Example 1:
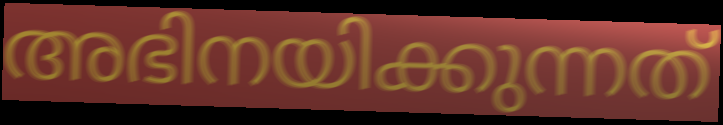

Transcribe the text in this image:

അഭിനയിക്കുന്നത്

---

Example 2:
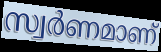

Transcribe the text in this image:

സ്വർണമാണ്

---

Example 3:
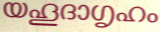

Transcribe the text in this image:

യഹൂദാഗൃഹം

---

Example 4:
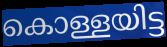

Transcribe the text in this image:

കൊള്ളയിട്ട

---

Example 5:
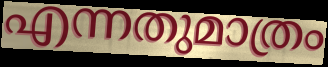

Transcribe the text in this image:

എന്നതുമാത്രം